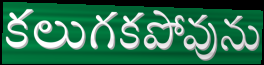
కలుగకపోవును